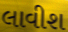
લાવીશ